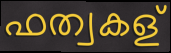
ഫത്വകള്